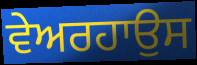
ਵੇਅਰਹਾਉਸ